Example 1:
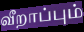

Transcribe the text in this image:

வீறாப்பும்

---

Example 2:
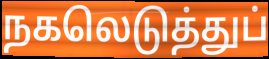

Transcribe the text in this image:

நகலெடுத்துப்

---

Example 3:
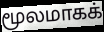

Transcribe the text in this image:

மூலமாகக்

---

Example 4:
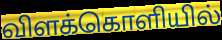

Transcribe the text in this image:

விளக்கொளியில்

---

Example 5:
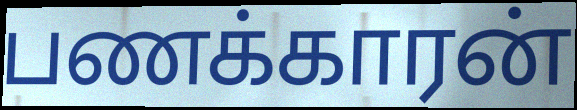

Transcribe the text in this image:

பணக்காரன்